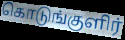
கொடுங்குளிர்